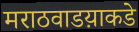
मराठवाडय़ाकडे